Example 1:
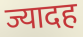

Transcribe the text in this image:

ज्यादह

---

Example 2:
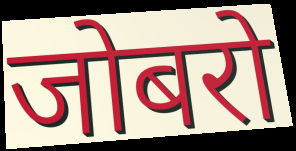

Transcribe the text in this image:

जोबरो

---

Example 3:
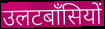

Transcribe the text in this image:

उलटबाँसियों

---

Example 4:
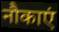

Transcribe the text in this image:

नौकाएं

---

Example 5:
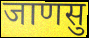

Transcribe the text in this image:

जाणसु